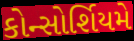
કોન્સોર્શિયમે